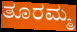
ತೂರಮ್ಮ